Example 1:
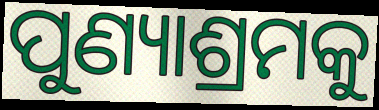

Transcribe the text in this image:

ପୁଣ୍ୟାଶ୍ରମକୁ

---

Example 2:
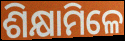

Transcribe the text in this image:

ଶିକ୍ଷାମିଳେ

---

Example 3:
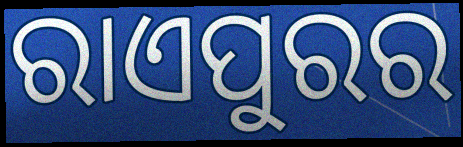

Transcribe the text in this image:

ରାଏପୁରର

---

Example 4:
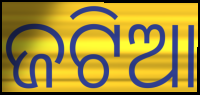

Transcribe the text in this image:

ଜଟିଆ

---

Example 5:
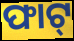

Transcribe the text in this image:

ଫାଟ୍